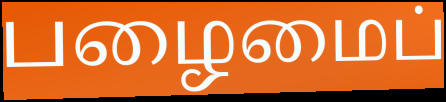
பழைமைப்